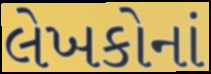
લેખકોનાં